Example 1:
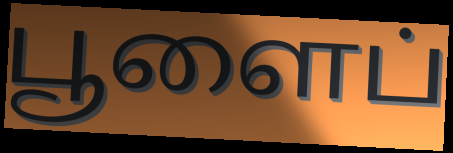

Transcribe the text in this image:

பூளைப்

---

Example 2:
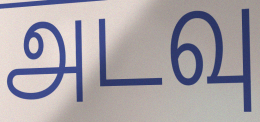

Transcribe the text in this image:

அடவு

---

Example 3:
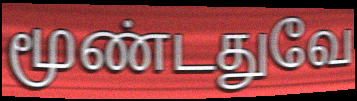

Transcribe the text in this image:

மூண்டதுவே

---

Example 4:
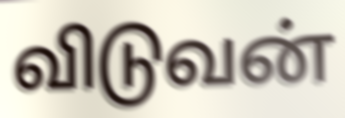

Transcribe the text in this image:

விடுவன்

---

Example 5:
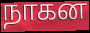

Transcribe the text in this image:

நாகன